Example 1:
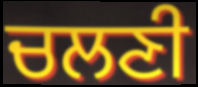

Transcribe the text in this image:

ਚਲਣੀ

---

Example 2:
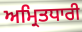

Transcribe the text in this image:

ਅਮ੍ਰਿਤਧਾਰੀ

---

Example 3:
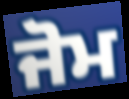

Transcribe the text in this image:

ਜੋਮ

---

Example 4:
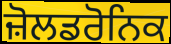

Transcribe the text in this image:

ਜ਼ੋਲਡਰੋਨਿਕ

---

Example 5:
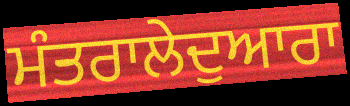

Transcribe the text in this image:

ਮੰਤਰਾਲੇਦੁਆਰਾ